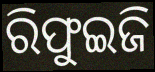
ରିଫୁଇଜି